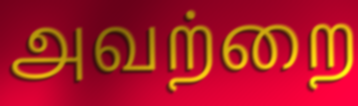
அவற்றை